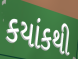
કયાંકથી